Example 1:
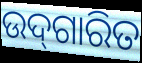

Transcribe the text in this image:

ଉଦ୍‌ଗାରିତ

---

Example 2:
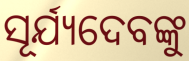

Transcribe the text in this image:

ସୂର୍ଯ୍ୟଦେବଙ୍କୁ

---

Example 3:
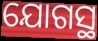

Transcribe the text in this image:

ଯୋଗସ୍ଥ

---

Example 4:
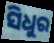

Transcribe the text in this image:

ସିଧୁର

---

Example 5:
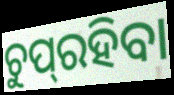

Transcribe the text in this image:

ଚୁପ୍‌ରହିବା